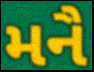
મનૈ